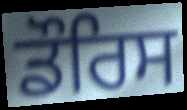
ਡੌਰਿਸ